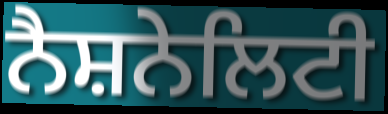
ਨੈਸ਼ਨੇਲਿਟੀ